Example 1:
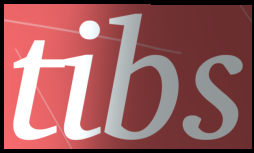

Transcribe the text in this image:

tibs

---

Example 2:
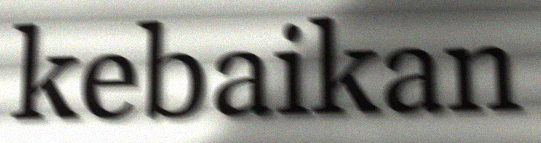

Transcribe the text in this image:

kebaikan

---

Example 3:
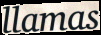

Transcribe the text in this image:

llamas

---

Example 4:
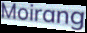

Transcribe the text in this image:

Moirang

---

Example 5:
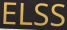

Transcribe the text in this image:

ELSS